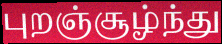
புறஞ்சூழ்ந்து